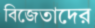
বিজেতাদের